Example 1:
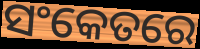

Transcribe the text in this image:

ସଂକେତରେ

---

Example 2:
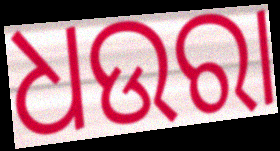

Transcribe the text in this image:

ଧଉରା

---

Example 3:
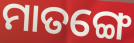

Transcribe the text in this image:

ମାତଙ୍ଗେ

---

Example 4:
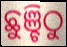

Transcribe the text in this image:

ଛୁଞ୍ଚିଠୁ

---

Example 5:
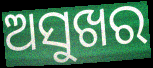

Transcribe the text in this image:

ଅସୁଖର